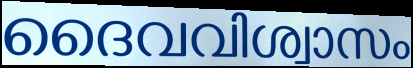
ദൈവവിശ്വാസം